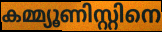
കമ്മ്യൂണിസ്റ്റിനെ